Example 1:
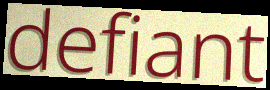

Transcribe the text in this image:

defiant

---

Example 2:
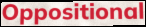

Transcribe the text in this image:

Oppositional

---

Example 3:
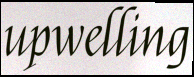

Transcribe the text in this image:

upwelling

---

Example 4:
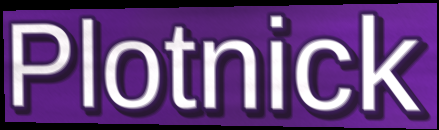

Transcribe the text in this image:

Plotnick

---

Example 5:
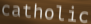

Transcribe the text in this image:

catholic